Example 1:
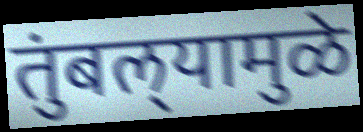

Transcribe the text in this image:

तुंबल्यामुळे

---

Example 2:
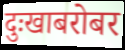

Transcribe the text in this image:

दुःखाबरोबर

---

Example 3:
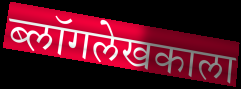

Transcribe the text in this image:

ब्लॉगलेखकाला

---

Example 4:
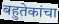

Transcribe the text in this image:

बहुतेकांचा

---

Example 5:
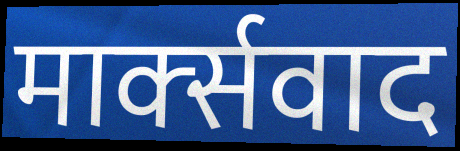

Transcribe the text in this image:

मार्क्‍सवाद